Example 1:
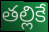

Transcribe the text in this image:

తల్లికే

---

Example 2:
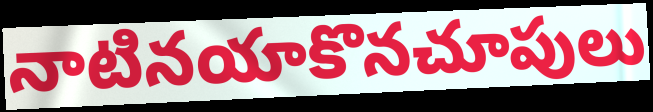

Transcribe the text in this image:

నాటినయాకొనచూపులు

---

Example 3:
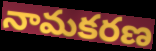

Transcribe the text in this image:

నామకరణ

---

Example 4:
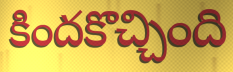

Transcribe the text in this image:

కిందకొచ్చింది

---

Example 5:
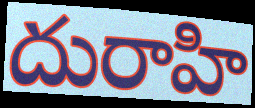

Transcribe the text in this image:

దురాహి